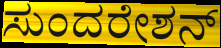
ಸುಂದರೇಶನ್